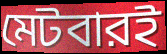
মেটবারই